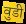
वुडी